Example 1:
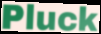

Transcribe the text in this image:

Pluck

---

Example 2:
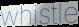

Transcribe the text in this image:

whistle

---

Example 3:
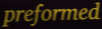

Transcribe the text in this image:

preformed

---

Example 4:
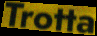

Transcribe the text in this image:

Trotta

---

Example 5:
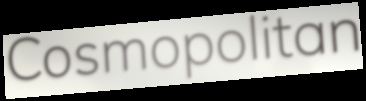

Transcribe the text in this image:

Cosmopolitan